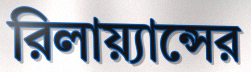
রিলায়্যান্সের